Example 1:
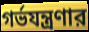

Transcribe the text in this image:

গর্ভযন্ত্রণার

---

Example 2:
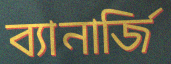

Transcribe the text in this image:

ব্যানার্জি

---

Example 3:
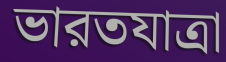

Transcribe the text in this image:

ভারতযাত্রা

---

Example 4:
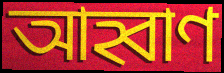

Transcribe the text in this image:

আহ্বাণ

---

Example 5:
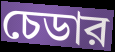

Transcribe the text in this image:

চেডার